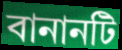
বানানটি